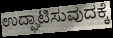
ಉದ್ಘಾಟಿಸುವುದಕ್ಕೆ